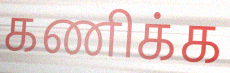
கணிக்க